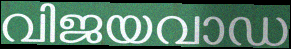
വിജയവാഡ